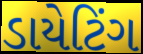
ડાયેટિંગ